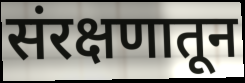
संरक्षणातून